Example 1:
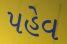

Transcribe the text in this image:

પહેવ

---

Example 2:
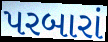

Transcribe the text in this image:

પરબારાં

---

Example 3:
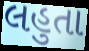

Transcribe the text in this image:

લહુતા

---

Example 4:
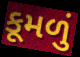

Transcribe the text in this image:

કૂમળું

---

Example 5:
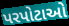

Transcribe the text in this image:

પરપોટાઓ